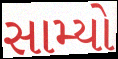
સામ્યો